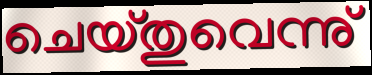
ചെയ്തുവെന്നു്